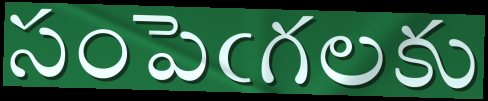
సంపెఁగలకు